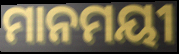
ମାନମୟୀ